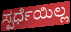
ಸ್ಪರ್ಧೆಯಿಲ್ಲ